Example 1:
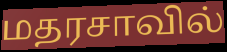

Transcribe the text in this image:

மதரசாவில்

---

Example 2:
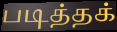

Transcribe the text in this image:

படித்தக்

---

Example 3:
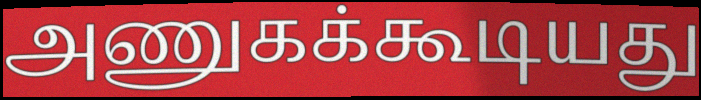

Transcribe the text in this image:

அணுகக்கூடியது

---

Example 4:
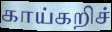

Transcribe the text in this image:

காய்கறிச்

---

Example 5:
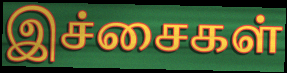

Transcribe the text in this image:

இச்சைகள்